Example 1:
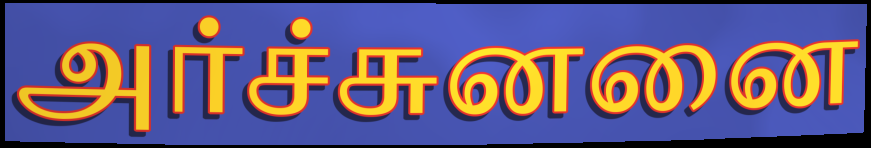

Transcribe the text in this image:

அர்ச்சுனனை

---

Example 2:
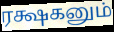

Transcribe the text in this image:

ரக்ஷகனும்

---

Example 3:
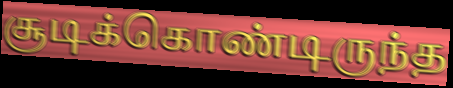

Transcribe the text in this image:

சூடிக்கொண்டிருந்த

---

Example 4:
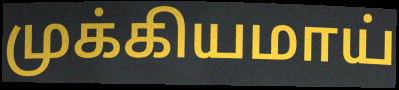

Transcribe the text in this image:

முக்கியமாய்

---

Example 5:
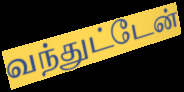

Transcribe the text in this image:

வந்துட்டேன்